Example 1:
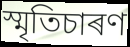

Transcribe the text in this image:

স্মৃতিচাৰণ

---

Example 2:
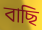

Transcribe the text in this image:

বাছি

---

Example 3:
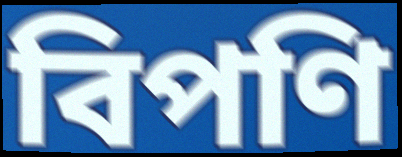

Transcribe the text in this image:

বিপণি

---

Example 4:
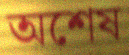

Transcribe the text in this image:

অশেষ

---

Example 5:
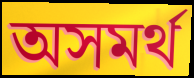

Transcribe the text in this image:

অসমৰ্থ